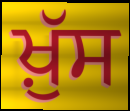
ਖ਼ੁੱਸ